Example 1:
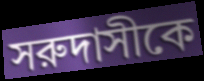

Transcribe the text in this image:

সরুদাসীকে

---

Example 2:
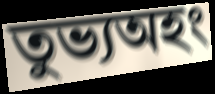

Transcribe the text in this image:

তুভ্যঅহং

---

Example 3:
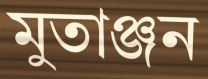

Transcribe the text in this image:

মুতাঞ্জন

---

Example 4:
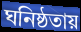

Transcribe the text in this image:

ঘনিষ্ঠতায়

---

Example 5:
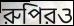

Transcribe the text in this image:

রুপিরও